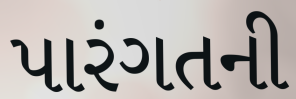
પારંગતની